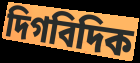
দিগবিদিক